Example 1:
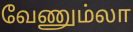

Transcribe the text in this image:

வேணும்லா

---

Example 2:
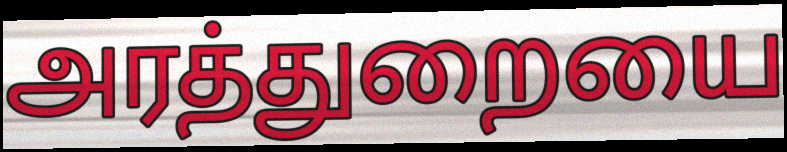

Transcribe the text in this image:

அரத்துறையை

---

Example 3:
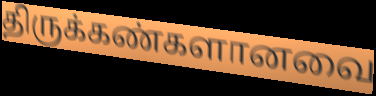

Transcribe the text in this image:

திருக்கண்களானவை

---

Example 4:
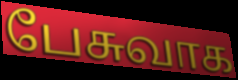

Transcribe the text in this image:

பேசுவாக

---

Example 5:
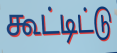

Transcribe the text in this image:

கூட்டிட்டு